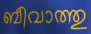
ബീവാത്തു